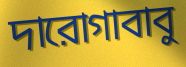
দারোগাবাবু